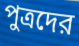
পুত্রদের